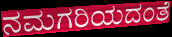
ನಮಗರಿಯದಂತೆ